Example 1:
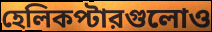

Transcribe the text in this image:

হেলিকপ্টারগুলোও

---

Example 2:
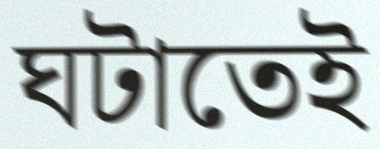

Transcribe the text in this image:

ঘটাতেই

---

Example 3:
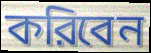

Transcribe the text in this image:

করিবেন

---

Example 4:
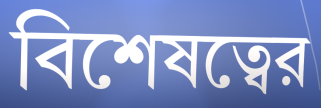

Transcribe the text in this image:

বিশেষত্বের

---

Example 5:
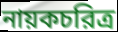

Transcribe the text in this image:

নায়কচরিত্র